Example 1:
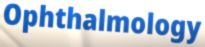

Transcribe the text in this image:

Ophthalmology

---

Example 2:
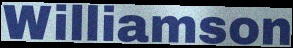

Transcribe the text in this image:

Williamson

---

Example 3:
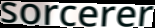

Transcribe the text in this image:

sorcerer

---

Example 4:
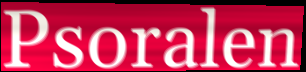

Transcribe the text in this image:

Psoralen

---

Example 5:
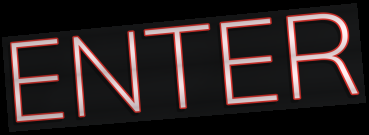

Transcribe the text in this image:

ENTER